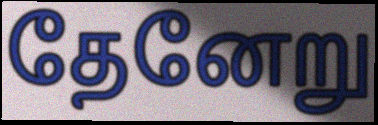
தேனேறு